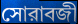
সোরাবজী